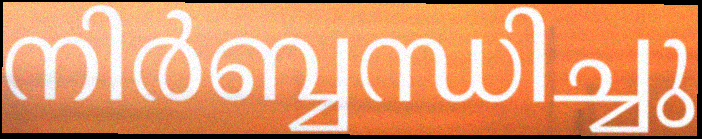
നിർബ്ബന്ധിച്ചു